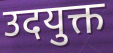
उदयुक्त